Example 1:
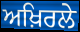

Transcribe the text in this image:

ਅਖ਼ਿਰਲੇ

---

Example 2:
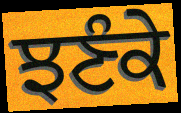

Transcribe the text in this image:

ਝਣੰਕੇ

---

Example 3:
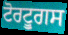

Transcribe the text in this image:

ਟੋਰਟੂਗਸ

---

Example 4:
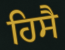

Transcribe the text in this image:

ਹਿਸੈ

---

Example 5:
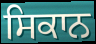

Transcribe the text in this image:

ਸਿਕਾਨ